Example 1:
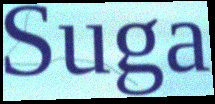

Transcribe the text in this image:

Suga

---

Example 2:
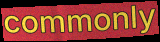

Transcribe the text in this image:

commonly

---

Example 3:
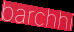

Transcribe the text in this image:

barchhi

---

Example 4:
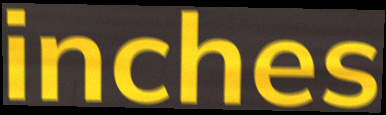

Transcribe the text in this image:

inches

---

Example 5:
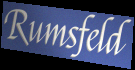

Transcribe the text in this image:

Rumsfeld